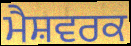
ਮੈਸ਼ਵਰਕ